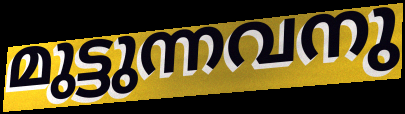
മുട്ടുന്നവനു